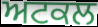
ਅਟਕਲ